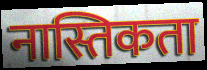
नास्तिकता